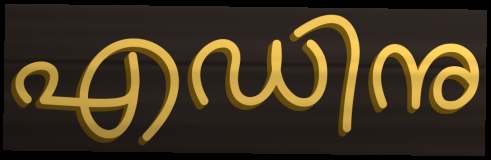
എഡിനു